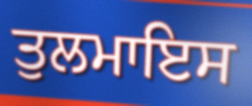
ਤੁਲਮਾਇਸ